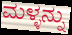
ಮಳ್ಳನ್ನು